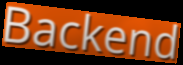
Backend